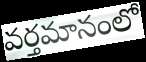
వర్తమానంలో